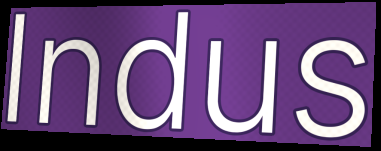
Indus